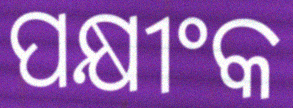
ପକ୍ଷୀଂକ